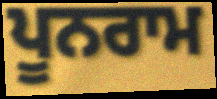
ਪੂਨਰਾਮ